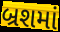
બ્રશમાં